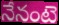
నేనంటె